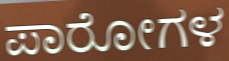
ಪಾರೋಗಳ